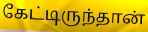
கேட்டிருந்தான்